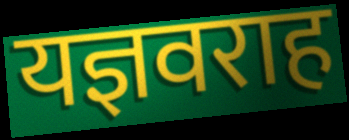
यज्ञवराह